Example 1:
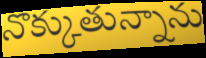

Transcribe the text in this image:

నొక్కుతున్నాను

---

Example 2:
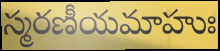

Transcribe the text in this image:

స్మరణీయమాహుః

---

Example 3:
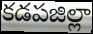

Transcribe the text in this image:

కడపజిల్లా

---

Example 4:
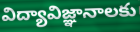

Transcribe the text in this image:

విద్యావిజ్ఞానాలకు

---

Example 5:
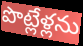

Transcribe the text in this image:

పొట్లేళ్లను